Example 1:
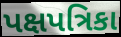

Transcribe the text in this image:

પક્ષપત્રિકા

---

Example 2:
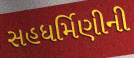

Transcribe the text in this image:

સહધર્મિણીની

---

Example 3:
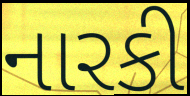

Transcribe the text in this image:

નારકી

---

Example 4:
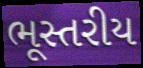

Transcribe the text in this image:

ભૂસ્તરીય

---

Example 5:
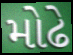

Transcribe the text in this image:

મોઢે